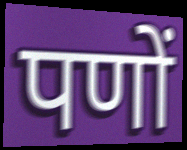
पणों